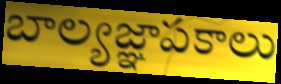
బాల్యజ్ఞాపకాలు